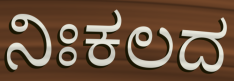
ನಿಃಕಲದ